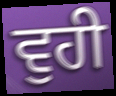
ਵੁਹੀ